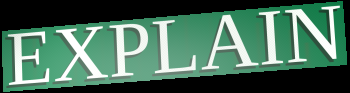
EXPLAIN